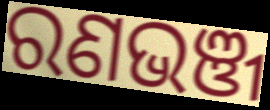
ରଣଭଞ୍ଜ